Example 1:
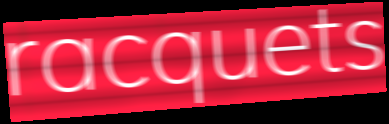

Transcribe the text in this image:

racquets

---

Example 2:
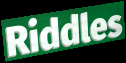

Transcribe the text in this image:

Riddles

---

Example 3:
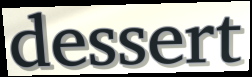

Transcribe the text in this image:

dessert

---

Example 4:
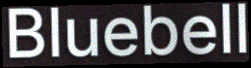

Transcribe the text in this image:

Bluebell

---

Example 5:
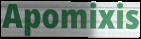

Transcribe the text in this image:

Apomixis